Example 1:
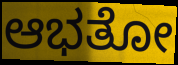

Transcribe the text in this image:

ಆಭತೋ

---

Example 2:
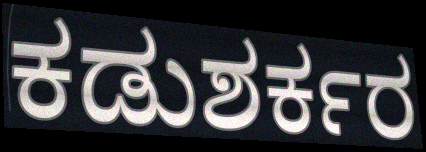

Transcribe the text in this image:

ಕಡುಶರ್ಕರ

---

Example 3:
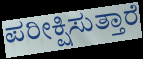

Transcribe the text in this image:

ಪರೀಕ್ಷಿಸುತ್ತಾರೆ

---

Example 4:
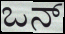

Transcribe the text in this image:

ಒನ್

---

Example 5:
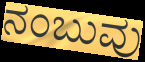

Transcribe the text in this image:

ನಂಬುವು